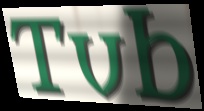
Tub